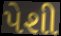
પેશી